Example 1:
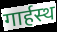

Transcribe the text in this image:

गार्हस्थ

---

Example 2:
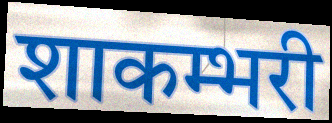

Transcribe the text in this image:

शाकम्भरी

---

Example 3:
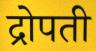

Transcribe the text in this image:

द्रोपती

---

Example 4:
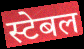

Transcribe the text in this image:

स्टेबल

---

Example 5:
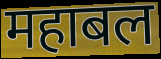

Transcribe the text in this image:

महाबल